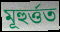
মূহুৰ্ত্তত